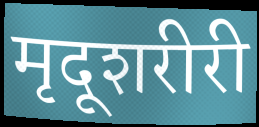
मृदूशरीरी